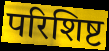
परिशिष्ट